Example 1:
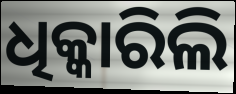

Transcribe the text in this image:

ଧିକ୍କାରିଲି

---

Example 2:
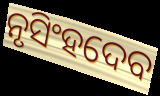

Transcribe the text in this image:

ନୃସିଂହଦେବ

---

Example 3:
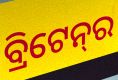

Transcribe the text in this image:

ବ୍ରିଟେନ୍‌ର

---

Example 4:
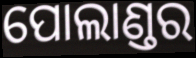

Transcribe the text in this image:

ପୋଲାଣ୍ଡର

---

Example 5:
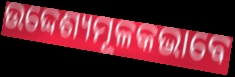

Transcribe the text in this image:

ଉଦ୍ଦେଶ୍ୟମୂଳକଭାବେ